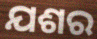
ଯଶର